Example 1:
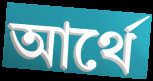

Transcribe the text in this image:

আর্থে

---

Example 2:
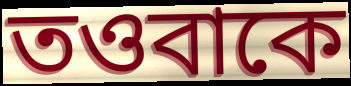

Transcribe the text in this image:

তওবাকে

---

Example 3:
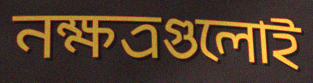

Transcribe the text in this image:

নক্ষত্রগুলোই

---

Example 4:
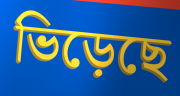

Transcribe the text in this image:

ভিড়েছে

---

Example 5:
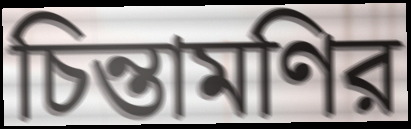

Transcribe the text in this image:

চিন্তামণির